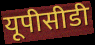
यूपीसीडी